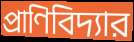
প্রাণিবিদ্যার